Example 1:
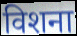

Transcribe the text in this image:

विशना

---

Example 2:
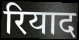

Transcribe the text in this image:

रियाद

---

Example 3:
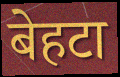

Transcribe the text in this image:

बेहटा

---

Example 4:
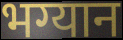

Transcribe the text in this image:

भग्यान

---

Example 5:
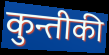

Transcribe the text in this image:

कुन्तीकी